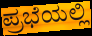
ಪ್ರಭೆಯಲ್ಲಿ